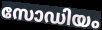
സോഡിയം